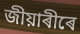
জীয়াৰীৰে